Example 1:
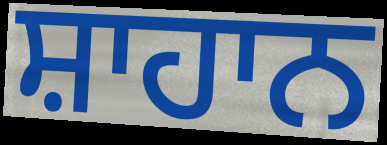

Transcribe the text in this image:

ਸ਼ਾਹਾਨ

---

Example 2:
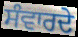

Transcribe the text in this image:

ਸੰਵਾਰਦੇ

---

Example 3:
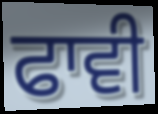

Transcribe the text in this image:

ਫਾਵੀ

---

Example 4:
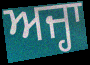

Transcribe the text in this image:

ਅਜ੍ਹਾ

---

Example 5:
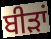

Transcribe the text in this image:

ਬੀੜਾਂ